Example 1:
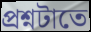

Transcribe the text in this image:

প্রশ্নটাতে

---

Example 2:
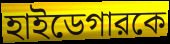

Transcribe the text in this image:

হাইডেগারকে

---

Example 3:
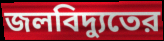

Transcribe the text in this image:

জলবিদ্যুতের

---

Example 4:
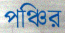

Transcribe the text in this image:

পঞ্চির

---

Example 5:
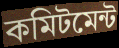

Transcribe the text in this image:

কমিটমেন্ট